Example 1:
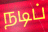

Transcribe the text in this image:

நடிப்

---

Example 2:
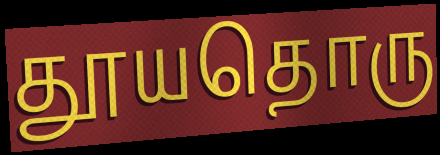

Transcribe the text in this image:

தூயதொரு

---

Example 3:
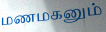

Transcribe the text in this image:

மணமகனும்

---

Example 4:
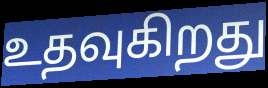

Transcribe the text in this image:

உதவுகிறது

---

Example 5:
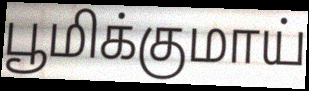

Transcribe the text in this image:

பூமிக்குமாய்